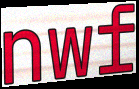
nwf